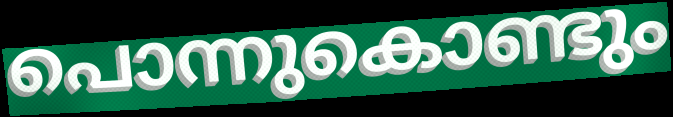
പൊന്നുകൊണ്ടും